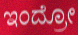
ಇಂದ್ರೋ